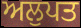
ਅਲੁਪਤ